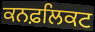
ਕਨਫ਼ਲਿਕਟ